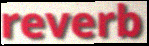
reverb